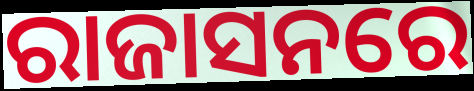
ରାଜାସନରେ